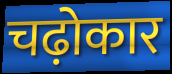
चढ़ोकार